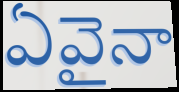
ఏవైనా